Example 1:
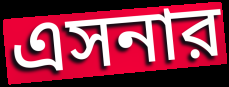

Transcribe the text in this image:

এসনার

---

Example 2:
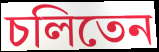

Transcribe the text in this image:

চলিতেন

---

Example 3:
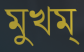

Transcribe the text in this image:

মুখম্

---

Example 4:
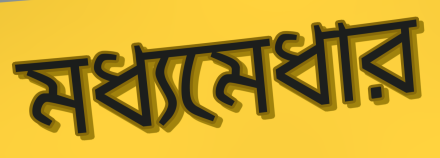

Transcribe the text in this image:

মধ্যমেধার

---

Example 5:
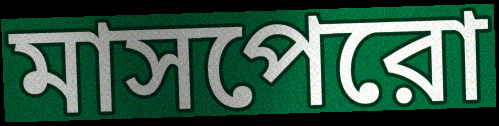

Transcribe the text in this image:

মাসপেরো